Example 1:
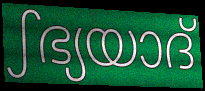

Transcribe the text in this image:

ഽഭ്യയാദ്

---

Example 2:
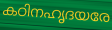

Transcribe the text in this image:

കഠിനഹൃദയരേ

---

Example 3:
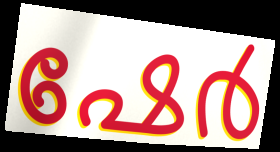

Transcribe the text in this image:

ഷേർ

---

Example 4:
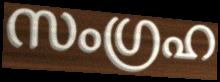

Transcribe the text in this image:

സംഗ്രഹ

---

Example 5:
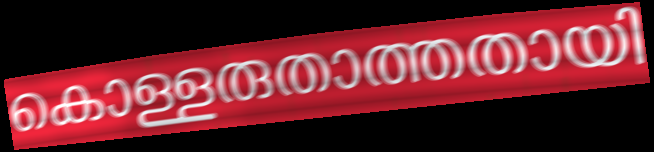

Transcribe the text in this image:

കൊള്ളരുതാത്തതായി